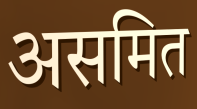
असमित